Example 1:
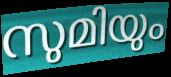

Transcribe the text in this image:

സുമിയും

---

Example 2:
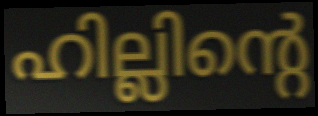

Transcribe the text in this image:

ഹില്ലിന്റെ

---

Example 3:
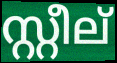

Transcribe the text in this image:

സ്റ്റീല്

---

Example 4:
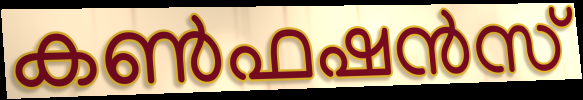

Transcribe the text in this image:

കൺഫഷൻസ്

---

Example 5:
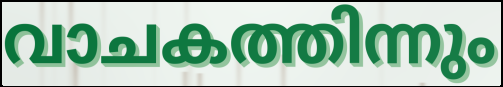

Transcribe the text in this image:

വാചകത്തിന്നും